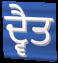
ਦ੍ਵੈਤ